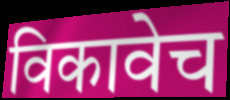
विकावेच